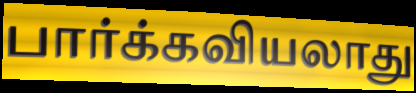
பார்க்கவியலாது